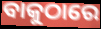
ବାକୁଠାରେ